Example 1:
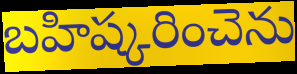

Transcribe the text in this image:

బహిష్కరించెను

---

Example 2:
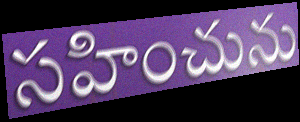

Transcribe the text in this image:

సహించును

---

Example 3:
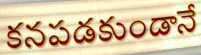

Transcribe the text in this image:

కనపడకుండానే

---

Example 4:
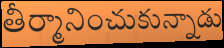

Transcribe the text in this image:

తీర్మానించుకున్నాడు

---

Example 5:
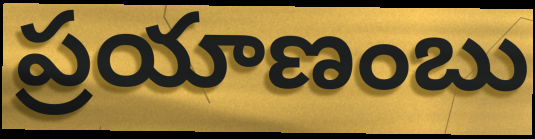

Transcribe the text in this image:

ప్రయాణంబు